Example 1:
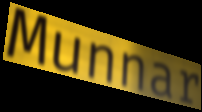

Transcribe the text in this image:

Munnar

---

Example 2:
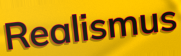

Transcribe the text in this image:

Realismus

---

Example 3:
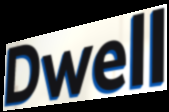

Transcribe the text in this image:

Dwell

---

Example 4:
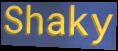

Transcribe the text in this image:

Shaky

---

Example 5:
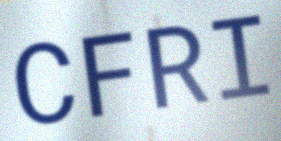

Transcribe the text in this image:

CFRI